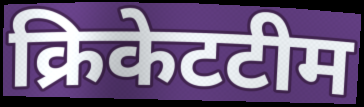
क्रिकेटटीम